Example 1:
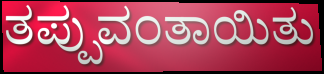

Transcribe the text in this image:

ತಪ್ಪುವಂತಾಯಿತು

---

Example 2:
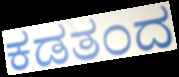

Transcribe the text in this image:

ಕಡತಂದ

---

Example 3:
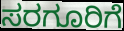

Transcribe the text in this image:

ಸರಗೂರಿಗೆ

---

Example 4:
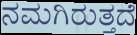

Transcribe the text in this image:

ನಮಗಿರುತ್ತದೆ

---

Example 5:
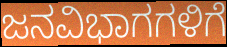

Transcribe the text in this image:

ಜನವಿಭಾಗಗಳಿಗೆ